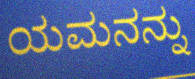
ಯಮನನ್ನು